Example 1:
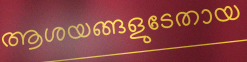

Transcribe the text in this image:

ആശയങ്ങളുടേതായ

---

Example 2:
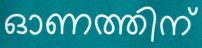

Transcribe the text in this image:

ഓണത്തിന്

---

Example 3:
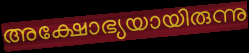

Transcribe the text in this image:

അക്ഷോഭ്യയായിരുന്നു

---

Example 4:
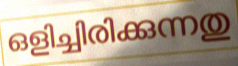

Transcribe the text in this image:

ഒളിച്ചിരിക്കുന്നതു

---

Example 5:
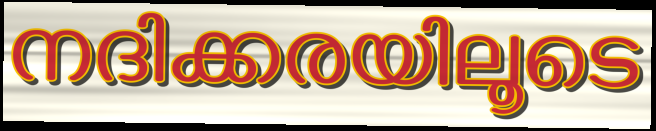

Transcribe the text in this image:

നദിക്കരയിലൂടെ